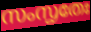
സംസൃതേഃ